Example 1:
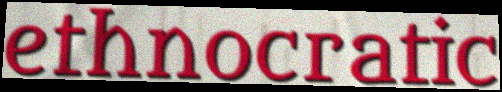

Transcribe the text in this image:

ethnocratic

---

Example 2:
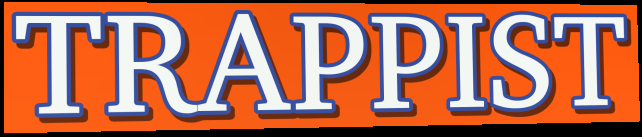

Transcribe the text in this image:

TRAPPIST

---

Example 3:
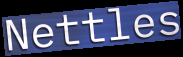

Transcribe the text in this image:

Nettles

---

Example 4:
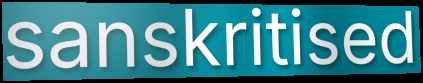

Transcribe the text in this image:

sanskritised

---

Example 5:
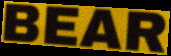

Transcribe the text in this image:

BEAR